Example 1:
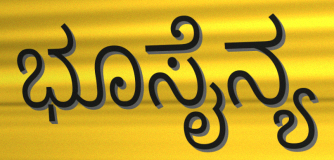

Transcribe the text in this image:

ಭೂಸೈನ್ಯ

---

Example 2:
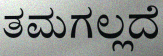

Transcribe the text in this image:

ತಮಗಲ್ಲದೆ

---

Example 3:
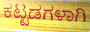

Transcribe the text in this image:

ಕಟ್ಟಡಗಳಾಗಿ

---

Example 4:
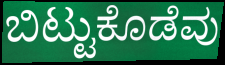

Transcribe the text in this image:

ಬಿಟ್ಟುಕೊಡೆವು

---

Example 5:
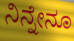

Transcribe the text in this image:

ನಿನ್ನೇನೂ